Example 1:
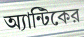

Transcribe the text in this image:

অ্যান্টিকের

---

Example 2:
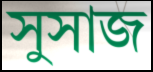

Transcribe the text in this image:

সুসাজ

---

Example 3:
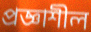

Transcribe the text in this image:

প্রজ্ঞাশীল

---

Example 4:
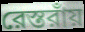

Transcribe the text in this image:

রেস্তরাঁয়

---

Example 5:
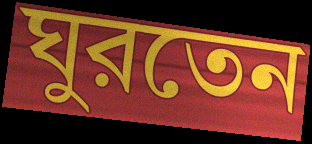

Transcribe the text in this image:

ঘুরতেন